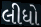
લીધો